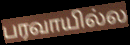
பரவாயில்ல